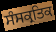
ਸੰਸਕ੍ਰਤਿਕ